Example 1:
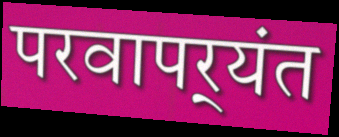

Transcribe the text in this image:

परवापर्यंत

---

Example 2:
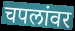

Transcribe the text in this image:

चपलांवर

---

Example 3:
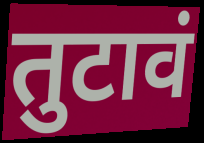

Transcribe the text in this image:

तुटावं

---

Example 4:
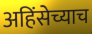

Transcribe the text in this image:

अहिंसेच्याच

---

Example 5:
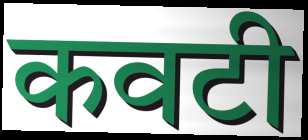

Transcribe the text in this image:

कवटी